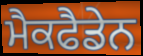
ਮੈਕਫੈਡੇਨ